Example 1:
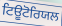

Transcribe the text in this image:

ਟਿਊਟੋਰਿਯਲ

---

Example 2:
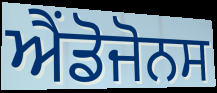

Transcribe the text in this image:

ਐਂਡੋਜੋਨਸ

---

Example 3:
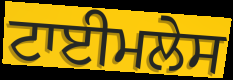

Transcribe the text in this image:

ਟਾਈਮਲੇਸ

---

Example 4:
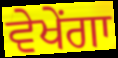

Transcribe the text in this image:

ਵੇਖੇਂਗਾ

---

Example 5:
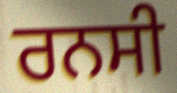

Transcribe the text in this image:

ਰਨਸੀ